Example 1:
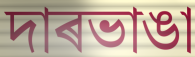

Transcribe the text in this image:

দাৰভাঙা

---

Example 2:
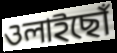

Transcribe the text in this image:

ওলাইছোঁ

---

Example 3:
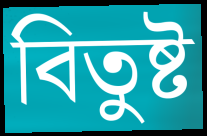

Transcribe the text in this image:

বিতুষ্ট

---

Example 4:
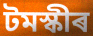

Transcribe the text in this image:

টমস্কীৰ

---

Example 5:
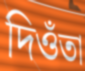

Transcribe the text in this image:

দিওঁতা